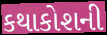
કથાકોશની